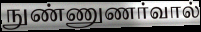
நுண்ணுணர்வால்